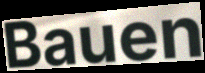
Bauen